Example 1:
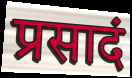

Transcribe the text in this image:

प्रसादं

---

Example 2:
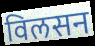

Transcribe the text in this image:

विलसन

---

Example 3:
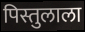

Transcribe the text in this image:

पिस्तुलाला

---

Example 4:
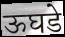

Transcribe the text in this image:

ऊघडे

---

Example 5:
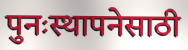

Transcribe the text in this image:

पुनःस्थापनेसाठी